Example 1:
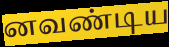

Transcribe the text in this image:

னவண்டிய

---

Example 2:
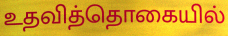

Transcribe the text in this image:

உதவித்தொகையில்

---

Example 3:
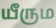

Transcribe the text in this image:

யீரும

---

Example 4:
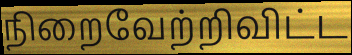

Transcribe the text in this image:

நிறைவேற்றிவிட்ட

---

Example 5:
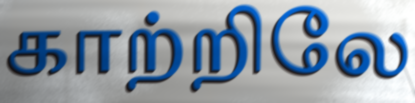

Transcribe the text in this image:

காற்றிலே